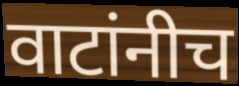
वाटांनीच